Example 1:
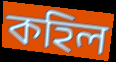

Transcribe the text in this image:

কহিল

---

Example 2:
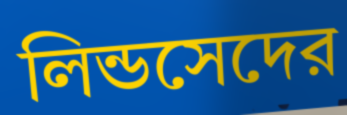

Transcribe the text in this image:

লিন্ডসেদের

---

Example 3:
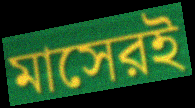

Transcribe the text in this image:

মাসেরই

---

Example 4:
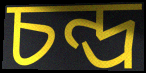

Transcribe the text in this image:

চন্দ্র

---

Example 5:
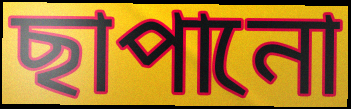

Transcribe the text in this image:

ছাপানো